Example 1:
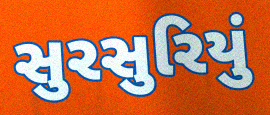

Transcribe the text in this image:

સુરસુરિયું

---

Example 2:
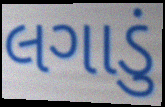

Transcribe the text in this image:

લગાડું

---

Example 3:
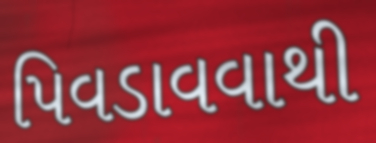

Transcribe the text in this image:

પિવડાવવાથી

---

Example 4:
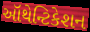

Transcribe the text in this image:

ઑથેન્ટિકેશન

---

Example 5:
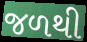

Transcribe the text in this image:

જળથી